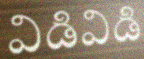
విడివిడి